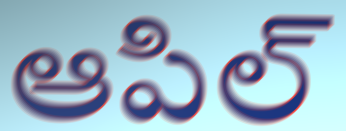
ఆపిల్